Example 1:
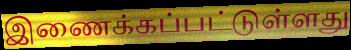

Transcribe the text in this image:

இணைக்கப்பட்டுள்ளது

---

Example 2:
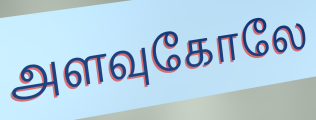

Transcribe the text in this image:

அளவுகோலே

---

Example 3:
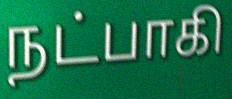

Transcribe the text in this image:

நட்பாகி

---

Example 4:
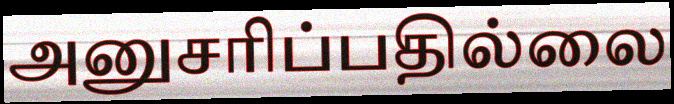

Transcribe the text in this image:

அனுசரிப்பதில்லை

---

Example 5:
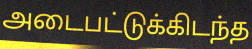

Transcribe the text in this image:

அடைபட்டுக்கிடந்த